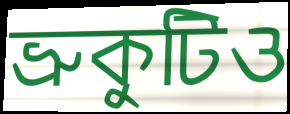
ভ্রুকুটিও